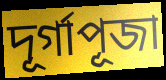
দূর্গাপূজা